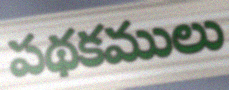
పథకములు